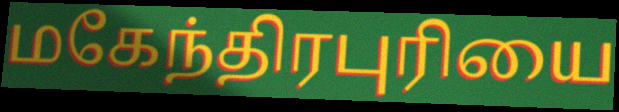
மகேந்திரபுரியை